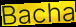
Bacha